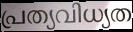
പ്രത്യവിധ്യത